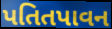
પતિતપાવન